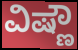
ವಿಷ್ಣೌ